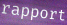
rapport